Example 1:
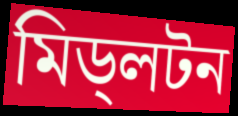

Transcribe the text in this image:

মিড্লটন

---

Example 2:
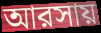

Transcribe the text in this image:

আরসায়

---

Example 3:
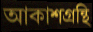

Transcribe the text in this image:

আকাশগ্রন্থি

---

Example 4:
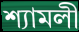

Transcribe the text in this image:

শ্যামলী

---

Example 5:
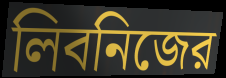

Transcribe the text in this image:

লিবনিজের